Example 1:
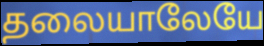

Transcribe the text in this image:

தலையாலேயே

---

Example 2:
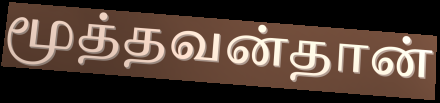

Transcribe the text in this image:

மூத்தவன்தான்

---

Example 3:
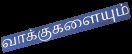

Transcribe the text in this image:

வாக்குகளையும்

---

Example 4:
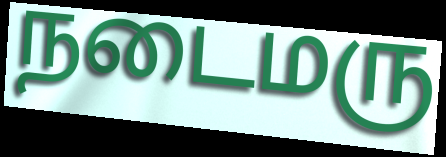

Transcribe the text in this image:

நடைமரு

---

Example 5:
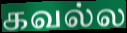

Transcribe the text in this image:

கவல்ல